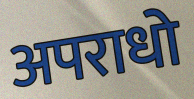
अपराधो